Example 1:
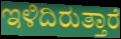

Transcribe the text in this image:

ಇಳಿದಿರುತ್ತಾರೆ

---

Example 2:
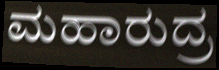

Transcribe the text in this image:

ಮಹಾರುದ್ರ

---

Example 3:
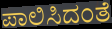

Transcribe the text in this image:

ಪಾಲಿಸಿದಂತೆ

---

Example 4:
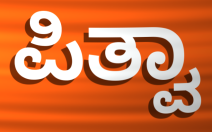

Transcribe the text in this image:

ಪಿತ್ವಾ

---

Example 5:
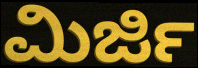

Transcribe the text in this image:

ಮಿರ್ಜಿ